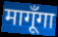
मागूँगा